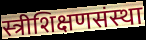
स्त्रीशिक्षणसंस्था